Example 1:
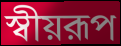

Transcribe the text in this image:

স্বীয়রূপ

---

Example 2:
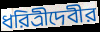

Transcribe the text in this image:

ধরিত্রীদেবীর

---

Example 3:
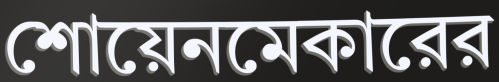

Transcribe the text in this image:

শোয়েনমেকারের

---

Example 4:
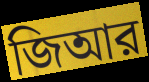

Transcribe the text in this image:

জিআর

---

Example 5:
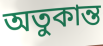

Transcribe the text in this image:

অতুকান্ত